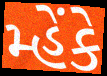
મ્હેંકે